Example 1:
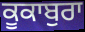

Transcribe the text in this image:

ਕੂਕਾਬੁਰਾ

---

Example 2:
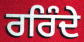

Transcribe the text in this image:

ਰਰਿੰਦੇ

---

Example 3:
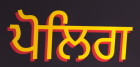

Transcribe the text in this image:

ਪੋਲਿਗ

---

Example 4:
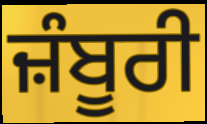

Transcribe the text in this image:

ਜ਼ੰਬੂਰੀ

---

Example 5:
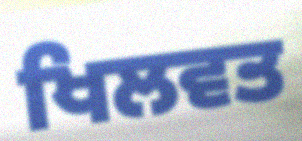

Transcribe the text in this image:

ਖਿਲਵਤ